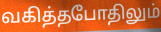
வகித்தபோதிலும்